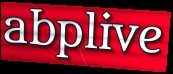
abplive